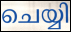
ചെയ്യി